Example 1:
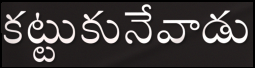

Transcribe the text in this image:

కట్టుకునేవాడు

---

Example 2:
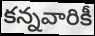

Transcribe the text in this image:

కన్నవారికీ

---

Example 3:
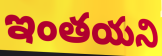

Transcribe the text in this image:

ఇంతయని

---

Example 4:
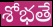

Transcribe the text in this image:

శోభతే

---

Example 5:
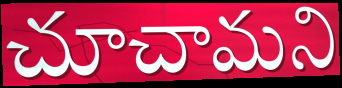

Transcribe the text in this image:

చూచామని